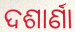
ଦଶାର୍ଣା